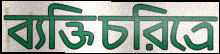
ব্যক্তিচরিত্রে